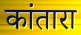
कांतारा